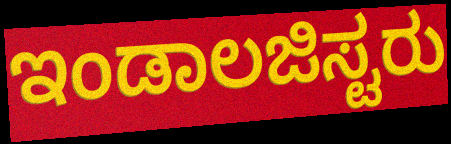
ಇಂಡಾಲಜಿಸ್ಟರು